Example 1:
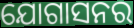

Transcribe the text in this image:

ଯୋଗାସନର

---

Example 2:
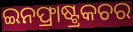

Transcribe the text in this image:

ଇନଫ୍ରାଷ୍ଟ୍ରକଚର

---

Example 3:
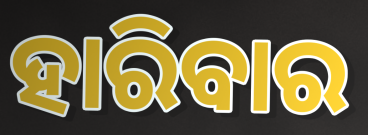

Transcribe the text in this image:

ହାରିବାର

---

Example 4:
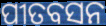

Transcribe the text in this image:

ପୀତବସନ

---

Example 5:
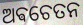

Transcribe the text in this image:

ଅଵଚେତନ